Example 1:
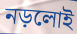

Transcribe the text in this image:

নড়লোই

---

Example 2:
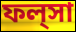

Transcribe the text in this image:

ফল্‌সা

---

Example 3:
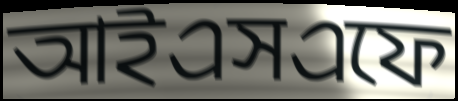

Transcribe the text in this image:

আইএসএফে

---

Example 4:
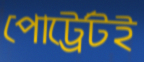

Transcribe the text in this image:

পোর্ট্রেটই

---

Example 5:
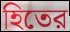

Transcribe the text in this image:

হিতের